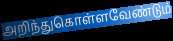
அறிந்துகொள்ளவேண்டும்